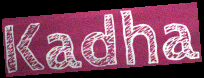
Kadha